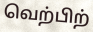
வெற்பிற்